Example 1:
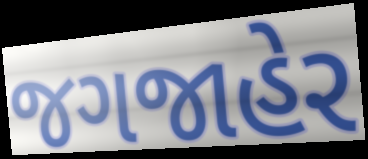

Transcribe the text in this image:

જગજાહેર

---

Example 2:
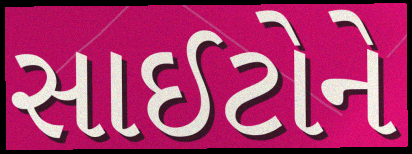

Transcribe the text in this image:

સાઈટોને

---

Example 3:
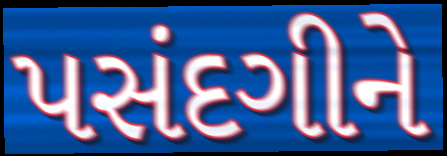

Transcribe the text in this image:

પસંદગીને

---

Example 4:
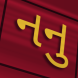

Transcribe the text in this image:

નનુ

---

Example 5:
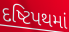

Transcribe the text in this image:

દષ્ટિપથમાં